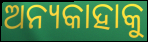
ଅନ୍ୟକାହାକୁ